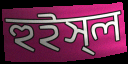
হুইস্‌ল